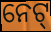
ନେଟ୍